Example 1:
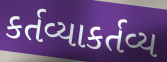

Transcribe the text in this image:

કર્તવ્યાકર્તવ્ય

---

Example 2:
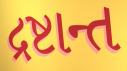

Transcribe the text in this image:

દ્રષ્ટાન્ત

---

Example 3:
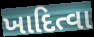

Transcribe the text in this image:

ખાદિત્વા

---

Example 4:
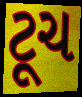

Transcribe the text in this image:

ટૂચ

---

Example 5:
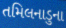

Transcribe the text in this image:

તમિલનાડુના